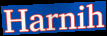
Harnih